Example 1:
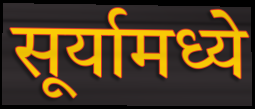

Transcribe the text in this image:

सूर्यामध्ये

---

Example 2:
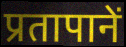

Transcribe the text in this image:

प्रतापानें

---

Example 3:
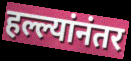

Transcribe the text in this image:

हल्ल्यांनंतर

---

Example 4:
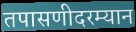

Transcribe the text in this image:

तपासणीदरम्यान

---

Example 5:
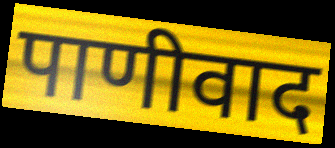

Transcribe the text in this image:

पाणीवाद